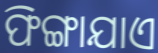
ଫିଙ୍ଗାଯାଏ